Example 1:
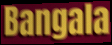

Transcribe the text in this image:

Bangala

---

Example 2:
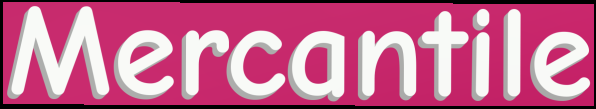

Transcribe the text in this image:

Mercantile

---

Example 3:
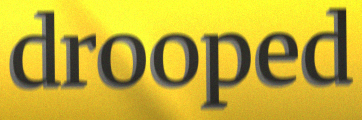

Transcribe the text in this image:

drooped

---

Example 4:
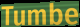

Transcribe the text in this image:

Tumbe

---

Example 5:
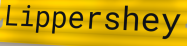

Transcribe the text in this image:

Lippershey